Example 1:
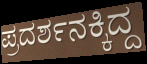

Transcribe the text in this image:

ಪ್ರದರ್ಶನಕ್ಕಿದ್ದ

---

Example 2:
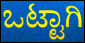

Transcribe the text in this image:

ಒಟ್ಟಾಗಿ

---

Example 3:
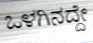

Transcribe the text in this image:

ಒಳಗಿನದ್ದೇ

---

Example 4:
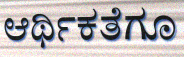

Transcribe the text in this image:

ಆರ್ಥಿಕತೆಗೂ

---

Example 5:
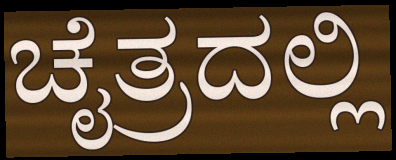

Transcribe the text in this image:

ಚೈತ್ರದಲ್ಲಿ